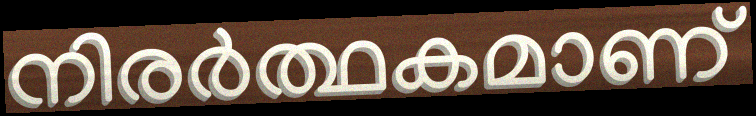
നിരർത്ഥകമാണ്